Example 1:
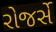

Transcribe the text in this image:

રોજર્સે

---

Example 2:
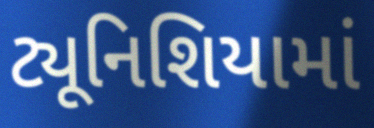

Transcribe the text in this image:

ટ્યૂનિશિયામાં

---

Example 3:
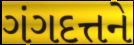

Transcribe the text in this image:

ગંગદત્તને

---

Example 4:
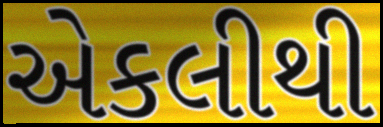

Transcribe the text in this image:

એકલીથી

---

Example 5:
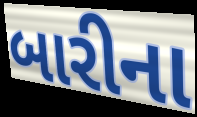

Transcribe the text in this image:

બારીના